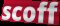
scoff